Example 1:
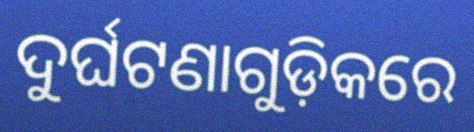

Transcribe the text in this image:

ଦୁର୍ଘଟଣାଗୁଡ଼ିକରେ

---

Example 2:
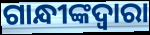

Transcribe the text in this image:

ଗାନ୍ଧୀଙ୍କଦ୍ଵାରା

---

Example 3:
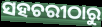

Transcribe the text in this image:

ସହଚରୀଠାରୁ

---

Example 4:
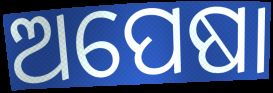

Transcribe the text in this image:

ଅପେଷା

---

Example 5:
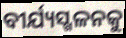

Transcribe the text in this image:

ବୀର୍ଯ୍ୟସ୍ଖଳନକୁ